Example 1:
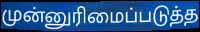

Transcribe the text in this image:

முன்னுரிமைப்படுத்த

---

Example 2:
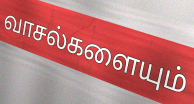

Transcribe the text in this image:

வாசல்களையும்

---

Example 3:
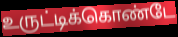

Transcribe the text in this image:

உருட்டிக்கொண்டே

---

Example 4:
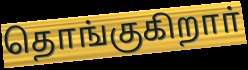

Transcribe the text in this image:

தொங்குகிறார்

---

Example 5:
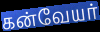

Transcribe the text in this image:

கன்வேயர்